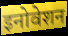
इनोवेशन